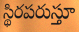
స్థిరపరుస్తూ